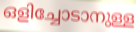
ഒളിച്ചോടാനുള്ള